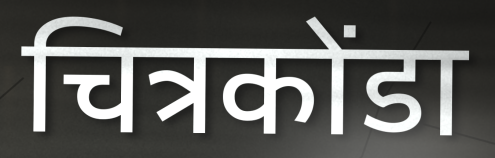
चित्रकोंडा